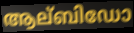
ആല്ബിഡോ